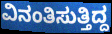
ವಿನಂತಿಸುತ್ತಿದ್ದ